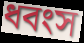
ধবংস